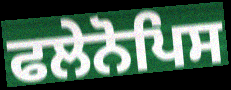
ਫਲੇਨੋਪਿਸ